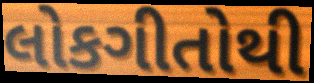
લોકગીતોથી